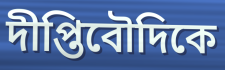
দীপ্তিবৌদিকে